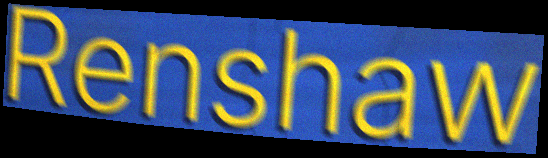
Renshaw